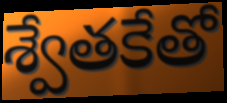
శ్వేతకేతో